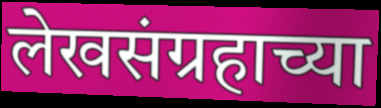
लेखसंग्रहाच्या